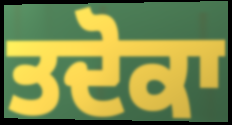
ਤਦੋਕਾ